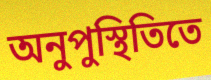
অনুপুস্থিতিতে